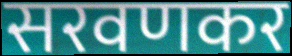
सरवणकर